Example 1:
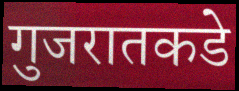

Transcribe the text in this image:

गुजरातकडे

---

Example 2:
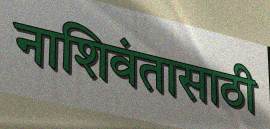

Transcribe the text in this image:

नाशिवंतासाठी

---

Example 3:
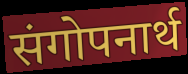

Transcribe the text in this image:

संगोपनार्थ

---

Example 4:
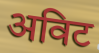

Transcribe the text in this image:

अविट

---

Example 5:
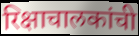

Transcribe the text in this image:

रिक्षाचालकांची